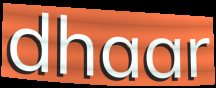
dhaar